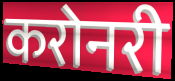
करोनरी